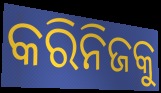
କରିନିଜକୁ